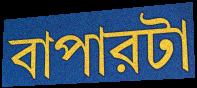
বাপারটা